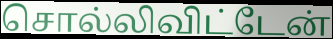
சொல்லிவிட்டேன்